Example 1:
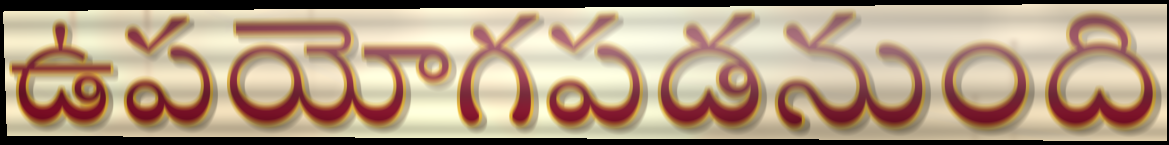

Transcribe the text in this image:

ఉపయోగపడనుంది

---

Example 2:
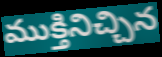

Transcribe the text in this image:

ముక్తినిచ్చిన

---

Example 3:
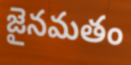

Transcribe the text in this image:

జైనమతం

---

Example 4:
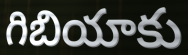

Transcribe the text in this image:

గిబియాకు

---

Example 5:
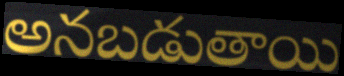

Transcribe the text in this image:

అనబడుతాయి